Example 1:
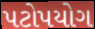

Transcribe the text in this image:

પટોપયોગ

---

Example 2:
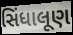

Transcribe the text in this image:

સિંધાલૂણ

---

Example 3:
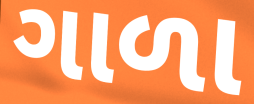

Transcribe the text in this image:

ગાળા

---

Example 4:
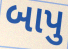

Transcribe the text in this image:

બાપુ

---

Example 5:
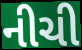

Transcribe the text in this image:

નીચી